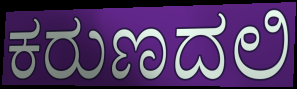
ಕರುಣದಲಿ